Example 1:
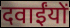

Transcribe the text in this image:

दवाईंयों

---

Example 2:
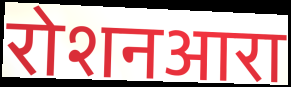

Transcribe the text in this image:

रोशनआरा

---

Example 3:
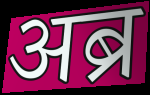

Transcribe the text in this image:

अब्र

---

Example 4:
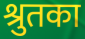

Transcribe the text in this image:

श्रुतका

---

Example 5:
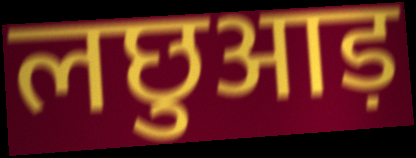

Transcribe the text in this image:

लछुआड़